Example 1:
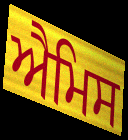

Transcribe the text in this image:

ਐਮਿਸ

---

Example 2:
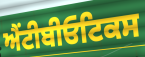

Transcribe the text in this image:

ਐਂਟੀਬੀਓਟਿਕਸ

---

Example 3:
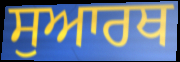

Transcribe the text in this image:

ਸੁਆਰਥ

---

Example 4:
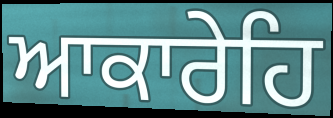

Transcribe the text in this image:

ਆਕਾਰੇਹਿ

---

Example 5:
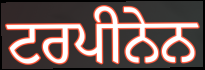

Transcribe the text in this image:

ਟਰਪੀਨੇਨ